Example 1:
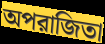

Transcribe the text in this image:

অপরাজিতা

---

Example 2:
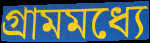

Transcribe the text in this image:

গ্রামমধ্যে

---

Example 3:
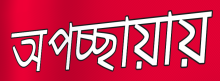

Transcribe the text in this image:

অপচ্ছায়ায়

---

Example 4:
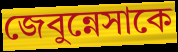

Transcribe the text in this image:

জেবুন্নেসাকে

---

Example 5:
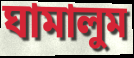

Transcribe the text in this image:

ঘামালুম